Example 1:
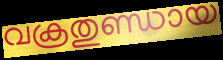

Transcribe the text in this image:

വക്രതുണ്ഡായ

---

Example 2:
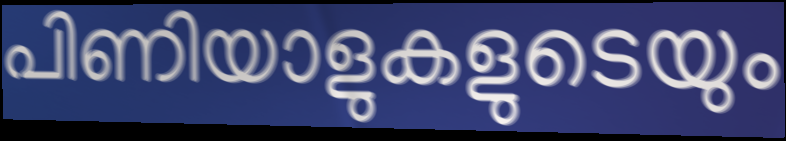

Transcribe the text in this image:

പിണിയാളുകളുടെയും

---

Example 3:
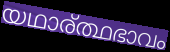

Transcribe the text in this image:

യഥാര്ത്ഥഭാവം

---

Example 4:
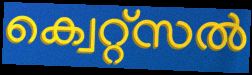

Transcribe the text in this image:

ക്വെറ്റ്സൽ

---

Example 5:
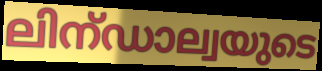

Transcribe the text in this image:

ലിന്ഡാല്വയുടെ